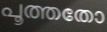
പൂത്തതോ